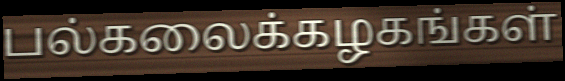
பல்கலைக்கழகங்கள்